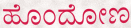
ಹೊಂದೋಣ